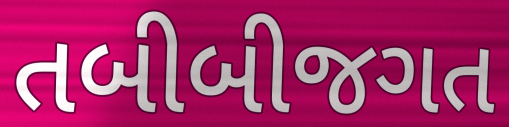
તબીબીજગત